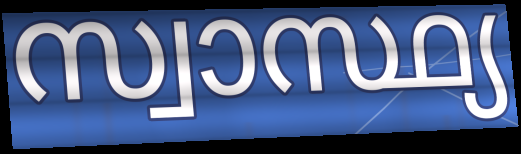
സ്വാസ്ഥ്യ